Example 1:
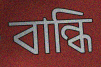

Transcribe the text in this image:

বান্ধি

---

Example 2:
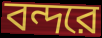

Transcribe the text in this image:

বন্দরে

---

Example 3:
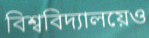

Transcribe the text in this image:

বিশ্ববিদ্যালয়েও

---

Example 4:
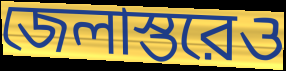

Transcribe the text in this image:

জেলাস্তরেও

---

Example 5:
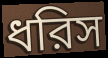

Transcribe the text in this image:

ধরিস